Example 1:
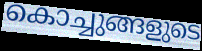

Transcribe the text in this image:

കൊച്ചുങ്ങളുടെ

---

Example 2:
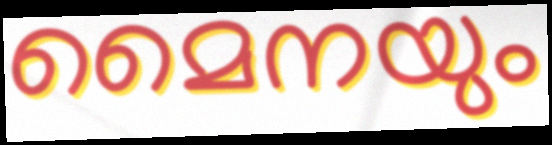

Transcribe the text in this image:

മൈനയും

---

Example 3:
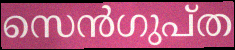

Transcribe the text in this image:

സെൻഗുപ്ത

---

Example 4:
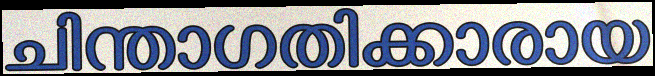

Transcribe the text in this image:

ചിന്താഗതിക്കാരായ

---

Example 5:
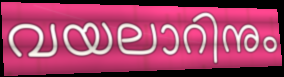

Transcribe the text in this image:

വയലാറിനും